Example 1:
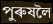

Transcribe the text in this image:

পুৰুষলৈ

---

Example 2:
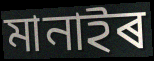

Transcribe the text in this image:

মানাইৰ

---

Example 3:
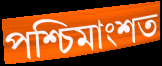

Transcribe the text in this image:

পশ্চিমাংশত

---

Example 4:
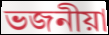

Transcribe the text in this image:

ভজনীয়া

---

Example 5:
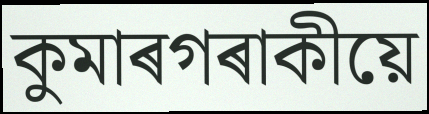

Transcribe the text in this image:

কুমাৰগৰাকীয়ে